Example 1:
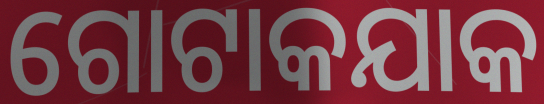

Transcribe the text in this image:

ଗୋଟାକଯାକ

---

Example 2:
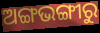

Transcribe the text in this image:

ଅଙ୍ଗଭଙ୍ଗୀରୁ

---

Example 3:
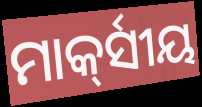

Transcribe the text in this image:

ମାର୍କ୍‍ସୀୟ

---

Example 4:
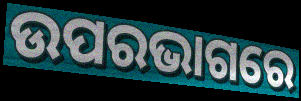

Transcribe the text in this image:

ଉପରଭାଗରେ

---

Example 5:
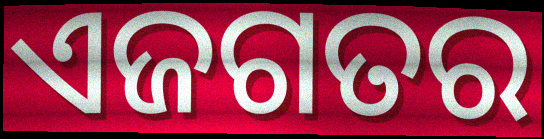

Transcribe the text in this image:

ଏଜଗତର